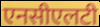
एनसीएलटी